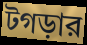
টগড়ার